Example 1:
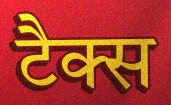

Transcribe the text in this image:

टैक्‍स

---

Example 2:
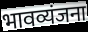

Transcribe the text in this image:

भावव्यंजना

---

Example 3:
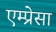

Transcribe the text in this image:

एम्प्रेसा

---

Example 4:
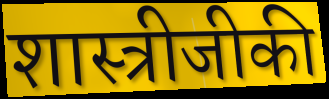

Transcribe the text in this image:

शास्त्रीजीकी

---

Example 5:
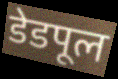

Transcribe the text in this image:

डेडपूल